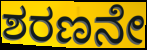
ಶರಣನೇ